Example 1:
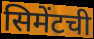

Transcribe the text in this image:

सिमेंटची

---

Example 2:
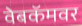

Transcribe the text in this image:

वेबकॅमवर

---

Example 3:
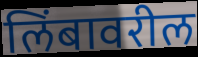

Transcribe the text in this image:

लिंबावरील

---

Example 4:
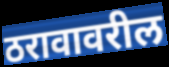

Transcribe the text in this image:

ठरावावरील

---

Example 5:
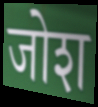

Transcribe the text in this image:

जोश